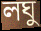
লঘু